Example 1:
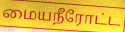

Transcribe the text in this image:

மையநீரோட்ட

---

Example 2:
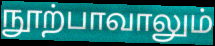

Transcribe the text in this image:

நூற்பாவாலும்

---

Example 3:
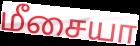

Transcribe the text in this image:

மீசையா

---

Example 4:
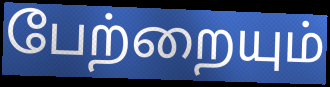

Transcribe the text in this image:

பேற்றையும்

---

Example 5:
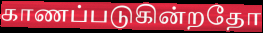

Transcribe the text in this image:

காணப்படுகின்றதோ